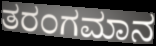
ತರಂಗಮಾನ